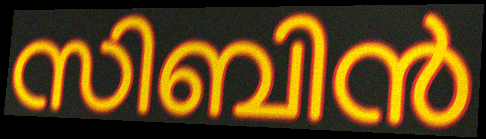
സിബിൻ